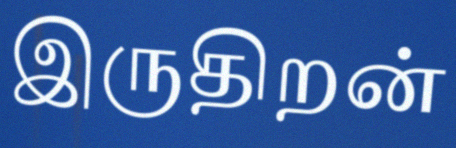
இருதிறன்